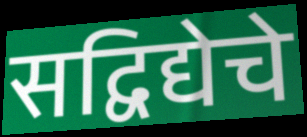
सद्विद्येचे